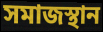
সমাজস্থান